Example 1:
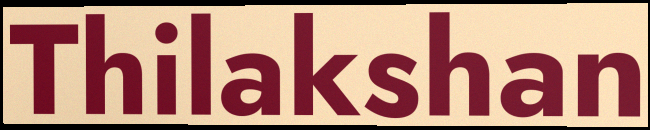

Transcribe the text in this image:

Thilakshan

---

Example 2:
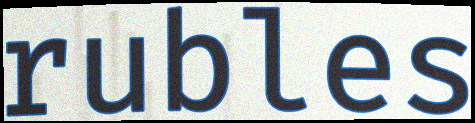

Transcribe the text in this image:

rubles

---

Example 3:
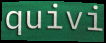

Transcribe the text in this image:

quivi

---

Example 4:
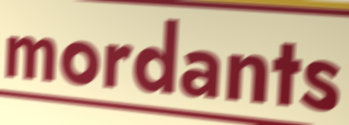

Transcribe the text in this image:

mordants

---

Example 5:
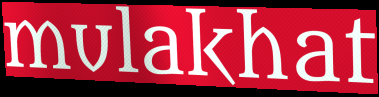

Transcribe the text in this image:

mulakhat